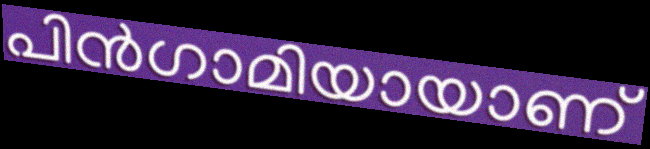
പിൻഗാമിയായാണ്